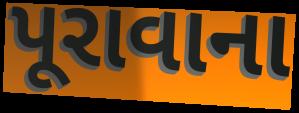
પૂરાવાના